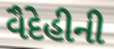
વૈદેહીની